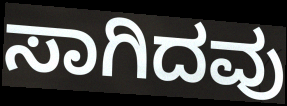
ಸಾಗಿದವು